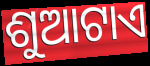
ଶୁଆଟାଏ